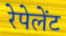
रेपेलेंट